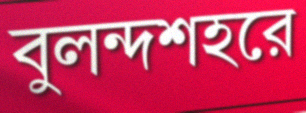
বুলন্দশহরে